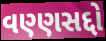
વણ્ણસદ્દો